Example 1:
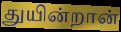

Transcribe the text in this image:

துயின்றான்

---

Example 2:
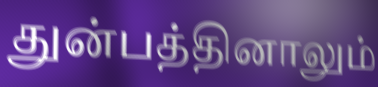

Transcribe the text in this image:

துன்பத்தினாலும்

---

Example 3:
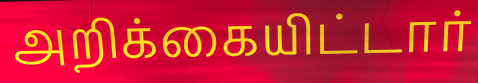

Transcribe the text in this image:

அறிக்கையிட்டார்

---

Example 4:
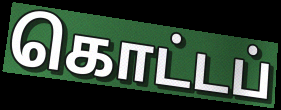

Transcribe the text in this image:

கொட்டப்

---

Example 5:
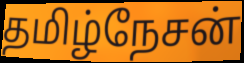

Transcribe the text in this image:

தமிழ்நேசன்